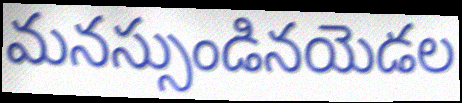
మనస్సుండినయెడల